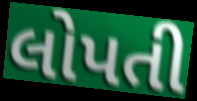
લોપતી